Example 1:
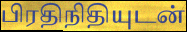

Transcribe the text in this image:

பிரதிநிதியுடன்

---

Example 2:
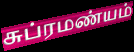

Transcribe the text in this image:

சுப்ரமண்யம்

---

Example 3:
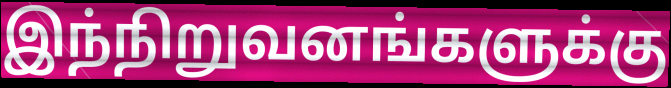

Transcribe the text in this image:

இந்நிறுவனங்களுக்கு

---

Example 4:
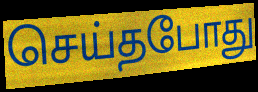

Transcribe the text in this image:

செய்தபோது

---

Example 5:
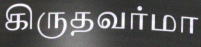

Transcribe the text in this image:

கிருதவர்மா